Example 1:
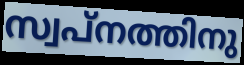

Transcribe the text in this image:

സ്വപ്നത്തിനു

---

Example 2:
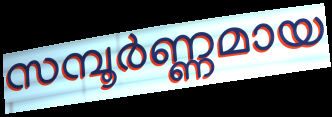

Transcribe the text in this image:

സമ്പൂർണ്ണമായ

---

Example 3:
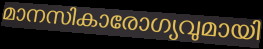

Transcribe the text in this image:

മാനസികാരോഗ്യവുമായി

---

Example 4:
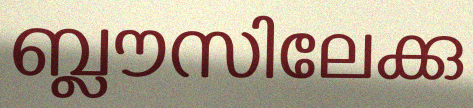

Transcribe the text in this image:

ബ്ലൗസിലേക്കു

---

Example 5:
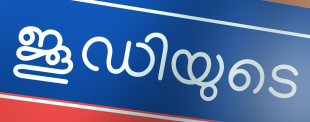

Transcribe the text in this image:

ജൂഡിയുടെ